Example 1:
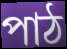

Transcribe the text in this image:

পাঠ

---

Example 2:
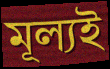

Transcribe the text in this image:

মূল্যই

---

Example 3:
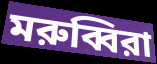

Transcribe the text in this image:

মরুব্বিরা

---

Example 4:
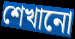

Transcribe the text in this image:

শেখানো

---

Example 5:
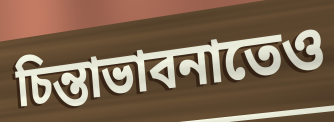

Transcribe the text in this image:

চিন্তাভাবনাতেও